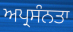
ਅਪ੍ਰਸੰਨਤਾ